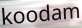
koodam